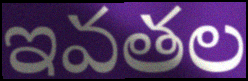
ఇవతల